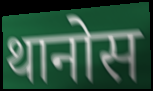
थानोस